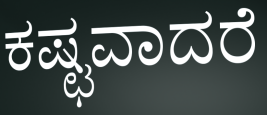
ಕಷ್ಟವಾದರೆ